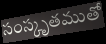
సంస్కృతముతో